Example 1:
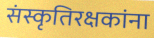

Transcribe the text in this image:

संस्कृतिरक्षकांना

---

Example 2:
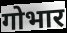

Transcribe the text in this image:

गोभार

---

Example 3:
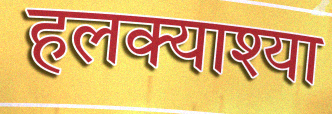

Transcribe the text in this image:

हलक्याश्या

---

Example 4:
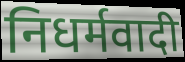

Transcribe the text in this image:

निधर्मवादी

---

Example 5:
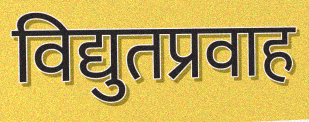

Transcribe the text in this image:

विद्युतप्रवाह